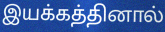
இயக்கத்தினால்